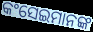
କଂସେଇମାନଙ୍କ